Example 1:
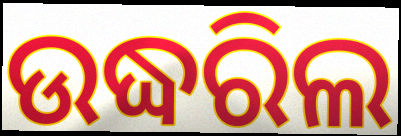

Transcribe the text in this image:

ଉଦ୍ଧରିଲ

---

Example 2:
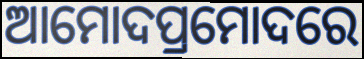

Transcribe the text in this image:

ଆମୋଦପ୍ରମୋଦରେ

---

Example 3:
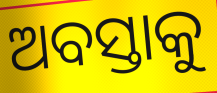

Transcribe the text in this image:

ଅବସ୍ତାକୁ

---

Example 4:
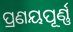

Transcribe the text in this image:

ପ୍ରଣୟପୂର୍ଣ୍ଣ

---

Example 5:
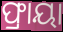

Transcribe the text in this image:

ଫ୍ରାୟା